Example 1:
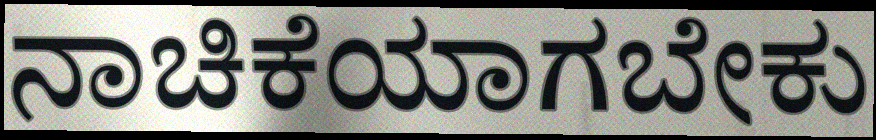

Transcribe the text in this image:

ನಾಚಿಕೆಯಾಗಬೇಕು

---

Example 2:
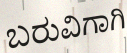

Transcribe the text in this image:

ಬರುವಿಗಾಗಿ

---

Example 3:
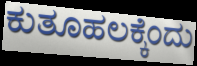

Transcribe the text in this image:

ಕುತೂಹಲಕ್ಕೆಂದು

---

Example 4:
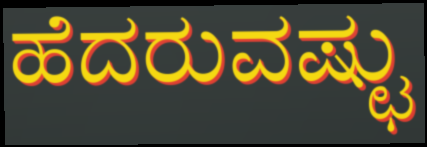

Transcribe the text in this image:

ಹೆದರುವಷ್ಟು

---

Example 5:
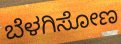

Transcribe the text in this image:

ಬೆಳಗಿಸೋಣ